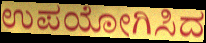
ಉಪಯೋಗಿಸಿದ